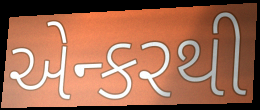
એન્કરથી